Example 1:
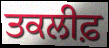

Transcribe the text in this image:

ਤਕਲੀਫ਼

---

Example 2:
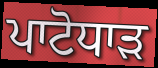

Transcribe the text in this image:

ਪਾਟੋਧਾੜ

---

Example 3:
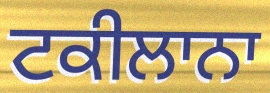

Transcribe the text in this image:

ਟਕੀਲਾਨਾ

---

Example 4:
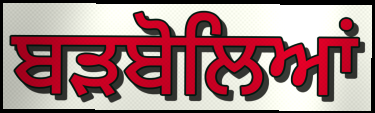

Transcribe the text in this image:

ਬੜਬੋਲਿਆਂ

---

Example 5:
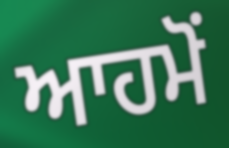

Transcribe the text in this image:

ਆਹਮੋਂ